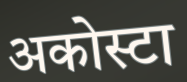
अकोस्टा